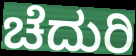
ಚೆದುರಿ